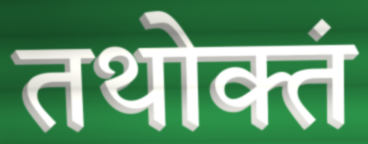
तथोक्तं